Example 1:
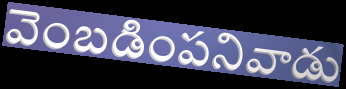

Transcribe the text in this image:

వెంబడింపనివాడు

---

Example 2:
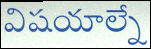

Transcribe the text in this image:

విషయాల్నే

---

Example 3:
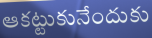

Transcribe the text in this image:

ఆకట్టుకునేందుకు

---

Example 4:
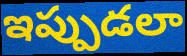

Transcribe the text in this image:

ఇప్పుడలా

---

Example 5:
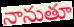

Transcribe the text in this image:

నానుతూ